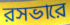
রসভারে